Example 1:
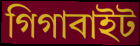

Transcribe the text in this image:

গিগাবাইট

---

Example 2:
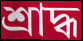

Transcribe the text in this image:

শ্ৰাদ্ধ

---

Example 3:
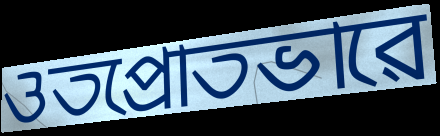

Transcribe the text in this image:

ওতপ্ৰোতভাৱে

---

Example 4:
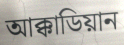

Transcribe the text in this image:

আক্কাডিয়ান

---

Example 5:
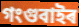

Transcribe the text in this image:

গংগুবাইৰ